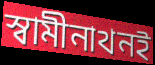
স্বামীনাথনই